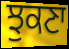
ਝੁਕਣਾ